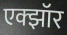
एक्झॉर